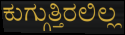
ಕುಗ್ಗುತ್ತಿರಲಿಲ್ಲ